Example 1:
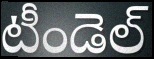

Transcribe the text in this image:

టీండెల్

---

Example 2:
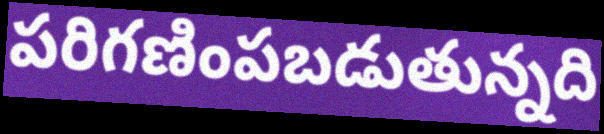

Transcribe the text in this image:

పరిగణింపబడుతున్నది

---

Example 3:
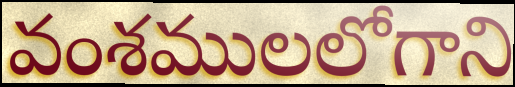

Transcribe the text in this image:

వంశములలోగాని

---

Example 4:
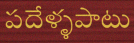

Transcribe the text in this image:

పదేళ్ళపాటు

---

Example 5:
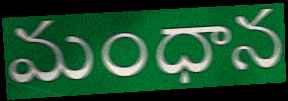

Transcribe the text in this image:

మంధాన